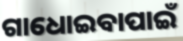
ଗାଧୋଇବାପାଇଁ